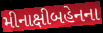
મીનાક્ષીબહેનના